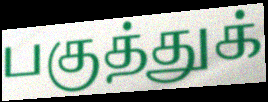
பகுத்துக்